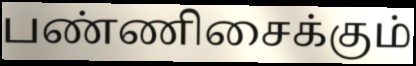
பண்ணிசைக்கும்